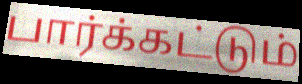
பார்க்கட்டும்